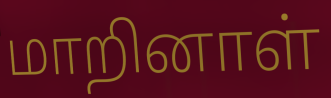
மாறினாள்